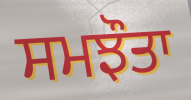
ਸਮਝੌਤਾ